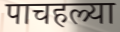
पाचहल्या